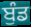
ਬੁੰਡ